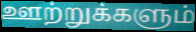
ஊற்றுக்களும்